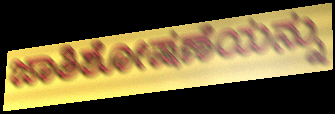
ಜಾತಿಶೋಷಣೆಯನ್ನು